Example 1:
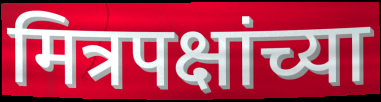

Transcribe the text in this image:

मित्रपक्षांच्या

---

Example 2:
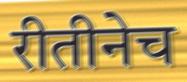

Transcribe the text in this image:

रीतीनेच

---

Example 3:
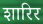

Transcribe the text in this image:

शारिर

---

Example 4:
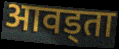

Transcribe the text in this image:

आवड्ता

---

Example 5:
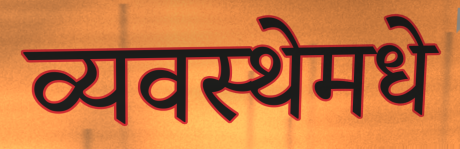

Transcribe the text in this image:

व्यवस्थेमधे